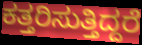
ಕತ್ತರಿಸುತ್ತಿದ್ದರೆ